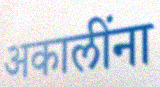
अकालींना